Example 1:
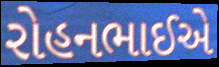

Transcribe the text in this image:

રોહનભાઈએ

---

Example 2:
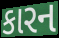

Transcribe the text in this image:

કારન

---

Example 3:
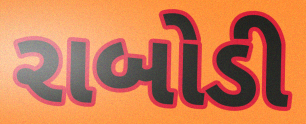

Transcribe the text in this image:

રાબોડી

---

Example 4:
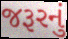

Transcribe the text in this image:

જરૂરનું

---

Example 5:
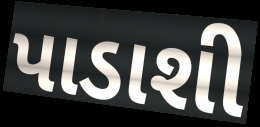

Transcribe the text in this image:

પાડાશી